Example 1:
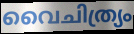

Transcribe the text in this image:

വൈചിത്ര്യം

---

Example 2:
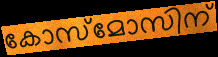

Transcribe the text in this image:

കോസ്മോസിന്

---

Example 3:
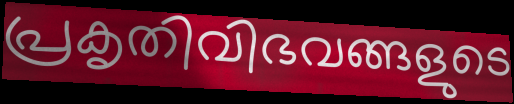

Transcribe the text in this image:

പ്രകൃതിവിഭവങ്ങളുടെ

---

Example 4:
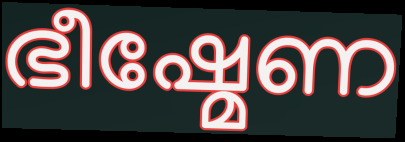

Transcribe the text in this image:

ഭീഷ്മേണ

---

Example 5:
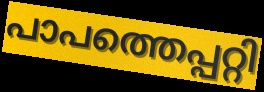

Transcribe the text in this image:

പാപത്തെപ്പറ്റി